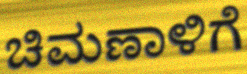
ಚಿಮಣಾಳಿಗೆ